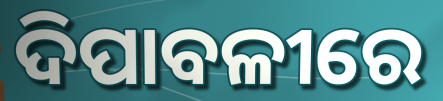
ଦିପାବଳୀରେ